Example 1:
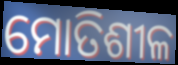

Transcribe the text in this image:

ମୋତିଶୀଳ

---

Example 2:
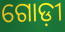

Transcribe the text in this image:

ଗୋଡ଼ୀ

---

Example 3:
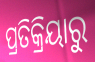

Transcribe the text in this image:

ପ୍ରତିକ୍ରିୟାରୁ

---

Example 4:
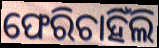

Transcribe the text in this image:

ଫେରିଚାହିଁଲି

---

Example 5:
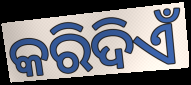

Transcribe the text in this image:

କରିଦିଏଁ